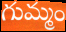
గుమ్మం